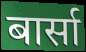
बार्सा